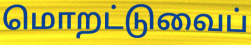
மொறட்டுவைப்